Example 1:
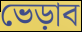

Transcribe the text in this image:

ভেড়াব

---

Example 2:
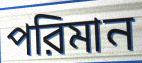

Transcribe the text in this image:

পরিমান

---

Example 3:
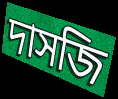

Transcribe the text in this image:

দাসজি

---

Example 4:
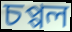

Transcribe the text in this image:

চপ্পল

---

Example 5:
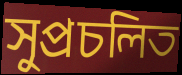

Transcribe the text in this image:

সুপ্রচলিত